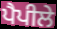
ਪੈਪੀਲੇ